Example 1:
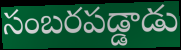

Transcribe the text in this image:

సంబరపడ్డాడు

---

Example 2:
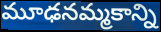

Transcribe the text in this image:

మూఢనమ్మకాన్ని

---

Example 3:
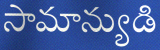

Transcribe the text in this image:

సామాన్యుడి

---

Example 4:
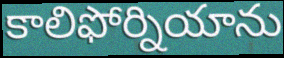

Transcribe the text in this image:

కాలిఫోర్నియాను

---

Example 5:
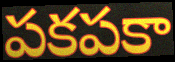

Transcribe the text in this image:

పకపకా